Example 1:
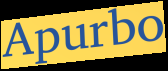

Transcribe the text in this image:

Apurbo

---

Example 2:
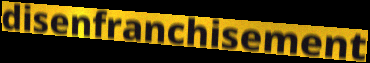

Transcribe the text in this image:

disenfranchisement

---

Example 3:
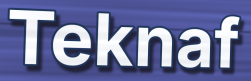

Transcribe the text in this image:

Teknaf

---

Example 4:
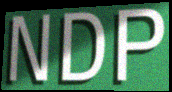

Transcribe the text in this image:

NDP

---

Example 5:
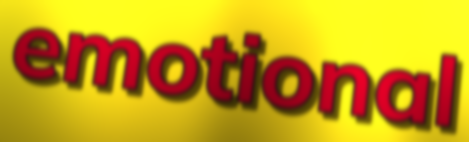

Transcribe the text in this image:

emotional